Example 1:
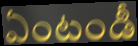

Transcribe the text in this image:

ఏంటండీ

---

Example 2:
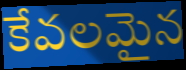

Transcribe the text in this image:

కేవలమైన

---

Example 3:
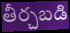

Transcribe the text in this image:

తీర్చబడి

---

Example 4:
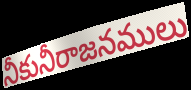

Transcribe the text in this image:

నీకునీరాజనములు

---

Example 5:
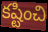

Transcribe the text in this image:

కష్టించి